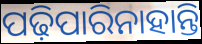
ପଢ଼ିପାରିନାହାନ୍ତି